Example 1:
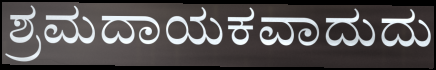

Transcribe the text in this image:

ಶ್ರಮದಾಯಕವಾದುದು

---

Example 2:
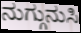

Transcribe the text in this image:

ನುಗ್ಗುನುಸಿ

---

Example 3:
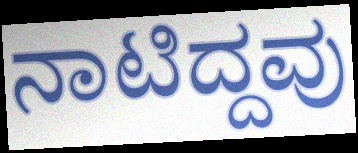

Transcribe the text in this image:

ನಾಟಿದ್ದವು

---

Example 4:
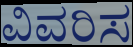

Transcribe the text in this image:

ವಿವರಿಸ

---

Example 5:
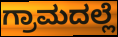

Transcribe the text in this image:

ಗ್ರಾಮದಲ್ಲೆ